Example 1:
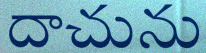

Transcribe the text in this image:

దాచును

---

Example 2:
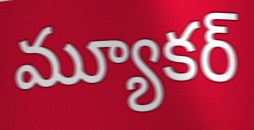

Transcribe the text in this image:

మ్యూకర్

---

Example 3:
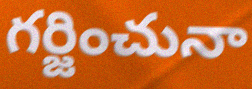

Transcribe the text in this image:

గర్జించునా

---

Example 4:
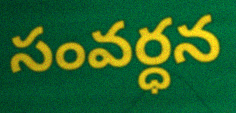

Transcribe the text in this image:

సంవర్ధన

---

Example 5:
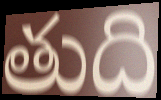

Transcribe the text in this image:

తుది